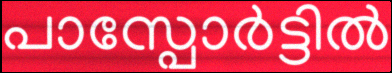
പാസ്പോർട്ടിൽ